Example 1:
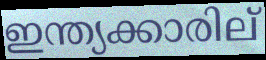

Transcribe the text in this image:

ഇന്ത്യക്കാരില്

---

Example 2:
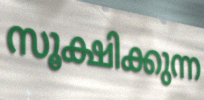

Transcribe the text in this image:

സൂക്ഷിക്കുന്ന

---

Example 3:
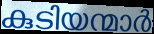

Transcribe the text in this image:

കുടിയന്മാർ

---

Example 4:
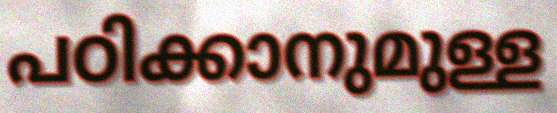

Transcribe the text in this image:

പഠിക്കാനുമുള്ള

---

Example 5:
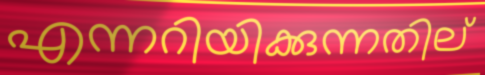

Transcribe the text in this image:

എന്നറിയിക്കുന്നതില്